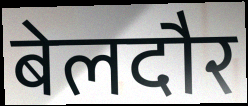
बेलदौर